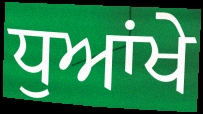
ਧੁਆਂਖੇ